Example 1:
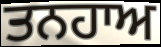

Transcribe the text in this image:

ਤਨਹਾਅ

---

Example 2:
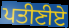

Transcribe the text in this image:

ਪਤੀਣੀਏ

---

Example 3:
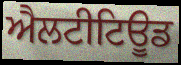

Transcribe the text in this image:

ਐਲਟੀਟਿਊਡ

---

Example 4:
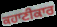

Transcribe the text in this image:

ਕਹਾਣੀਕਾਰ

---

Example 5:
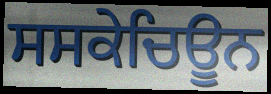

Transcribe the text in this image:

ਸਸਕੇਚਿਊਨ